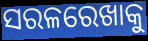
ସରଳରେଖାକୁ